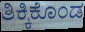
ತಿಕ್ಕಿಕೊಂಡ